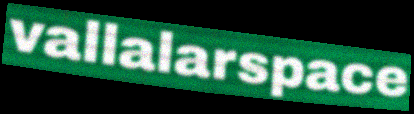
vallalarspace